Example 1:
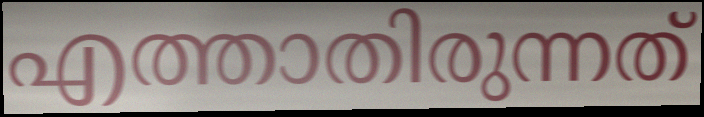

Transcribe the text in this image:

എത്താതിരുന്നത്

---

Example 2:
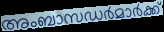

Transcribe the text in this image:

അംബാസഡർമാർക്ക്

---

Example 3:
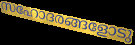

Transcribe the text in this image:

സഹോദരങ്ങളോടു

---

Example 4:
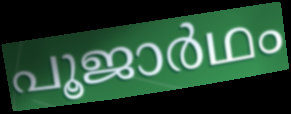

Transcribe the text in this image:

പൂജാർഥം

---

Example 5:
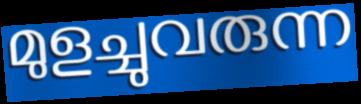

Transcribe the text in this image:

മുളച്ചുവരുന്ന